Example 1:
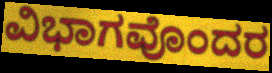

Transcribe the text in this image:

ವಿಭಾಗವೊಂದರ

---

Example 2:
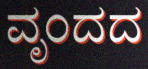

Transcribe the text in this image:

ವೃಂದದ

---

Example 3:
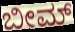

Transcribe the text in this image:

ಬೀಮ್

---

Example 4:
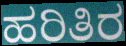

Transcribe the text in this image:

ಹರಿತಿರ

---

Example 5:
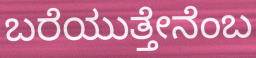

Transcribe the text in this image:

ಬರೆಯುತ್ತೇನೆಂಬ